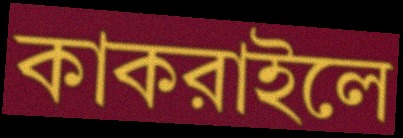
কাকরাইলে